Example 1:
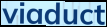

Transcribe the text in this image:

viaduct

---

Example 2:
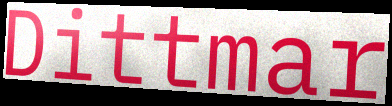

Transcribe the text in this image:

Dittmar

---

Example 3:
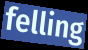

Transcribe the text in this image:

felling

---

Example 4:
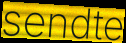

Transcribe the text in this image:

sendte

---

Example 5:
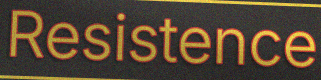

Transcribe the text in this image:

Resistence